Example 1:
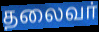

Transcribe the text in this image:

தலைவர்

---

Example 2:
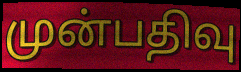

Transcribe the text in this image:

முன்பதிவு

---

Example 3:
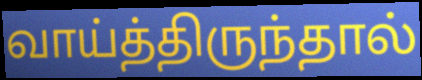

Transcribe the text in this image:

வாய்த்திருந்தால்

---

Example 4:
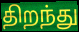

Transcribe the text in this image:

திறந்து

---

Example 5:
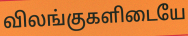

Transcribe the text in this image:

விலங்குகளிடையே